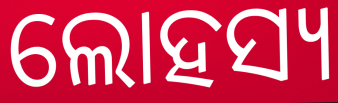
ଲୋହସ୍ୟ